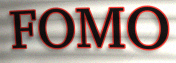
FOMO